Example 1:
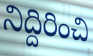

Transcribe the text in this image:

నిద్దిరించి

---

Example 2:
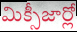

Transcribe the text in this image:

మిక్సీజార్లో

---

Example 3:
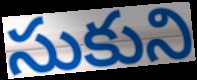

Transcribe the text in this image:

సుకుని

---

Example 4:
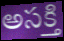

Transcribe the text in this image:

అసక్తి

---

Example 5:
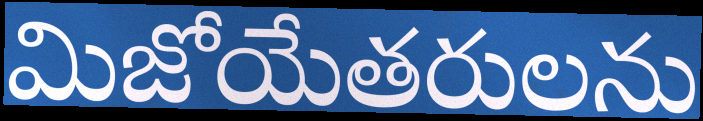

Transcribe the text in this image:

మిజోయేతరులను